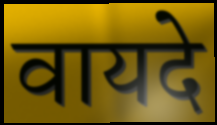
वायदे